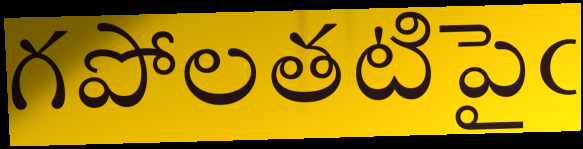
గపోలతటిపైఁ